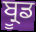
ਬ੍ਰੂਡ